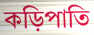
কড়িপাতি